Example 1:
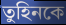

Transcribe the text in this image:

তুহিনকে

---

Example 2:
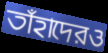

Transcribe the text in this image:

তাঁহাদেরও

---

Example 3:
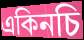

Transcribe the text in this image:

একিনচি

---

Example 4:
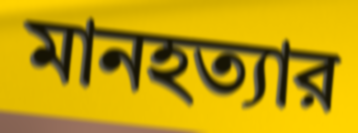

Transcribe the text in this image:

মানহত্যার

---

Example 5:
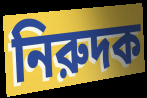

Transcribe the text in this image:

নিরুদক